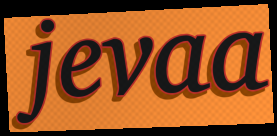
jevaa